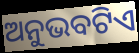
ଅନୁଭବଟିଏ